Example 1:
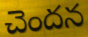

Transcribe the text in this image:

చెందన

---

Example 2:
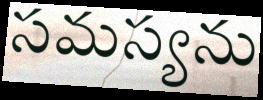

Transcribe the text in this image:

సమస్యను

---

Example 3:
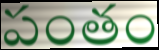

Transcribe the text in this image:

పంతం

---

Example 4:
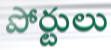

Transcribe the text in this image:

పోర్టులు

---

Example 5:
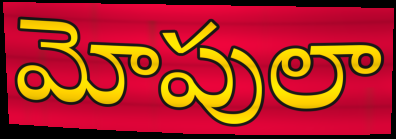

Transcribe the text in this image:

మోపులా